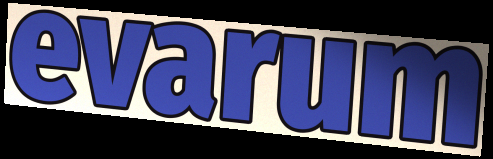
evarum